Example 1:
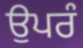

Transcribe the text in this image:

ਉਪਰੰ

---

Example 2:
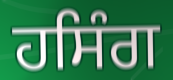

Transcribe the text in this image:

ਹਸਿੰਗ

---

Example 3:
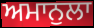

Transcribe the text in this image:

ਅਮਾਨੁਲਾ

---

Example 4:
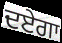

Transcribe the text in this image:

ਦਏਗਾ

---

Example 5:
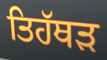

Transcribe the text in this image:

ਤਿਹੱਥੜ